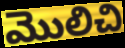
మొలిచి